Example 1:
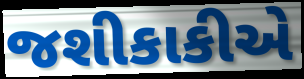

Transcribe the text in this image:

જશીકાકીએ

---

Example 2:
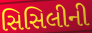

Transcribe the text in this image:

સિસિલીની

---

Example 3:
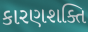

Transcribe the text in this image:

કારણશક્તિ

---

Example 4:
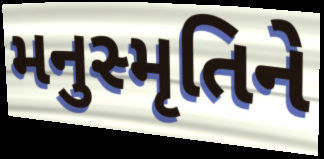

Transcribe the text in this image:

મનુસ્મૃતિને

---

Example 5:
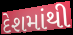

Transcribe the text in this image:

દેશમાંથી